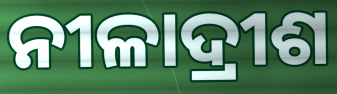
ନୀଳାଦ୍ରୀଶ